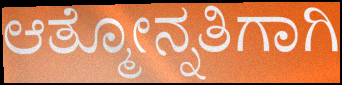
ಆತ್ಮೋನ್ನತಿಗಾಗಿ